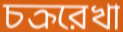
চক্ররেখা